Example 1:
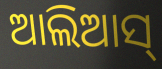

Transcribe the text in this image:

ଆଲିଆସ୍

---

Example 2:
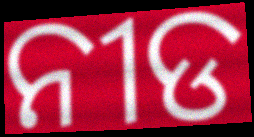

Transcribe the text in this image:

ନୀଡ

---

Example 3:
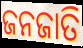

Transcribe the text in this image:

ଜନଜାତି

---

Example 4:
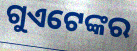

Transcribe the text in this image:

ଗୁଏଟେଙ୍କର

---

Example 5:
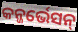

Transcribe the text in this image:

କନ୍ଜର୍ଭେସନ୍